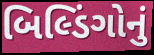
બિલ્ડિંગોનું